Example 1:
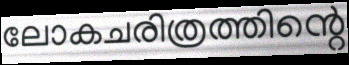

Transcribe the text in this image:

ലോകചരിത്രത്തിന്റെ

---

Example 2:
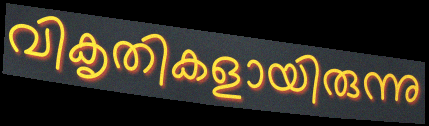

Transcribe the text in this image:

വികൃതികളായിരുന്നു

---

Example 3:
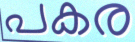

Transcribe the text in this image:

പകര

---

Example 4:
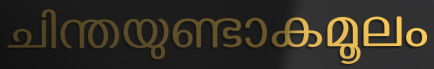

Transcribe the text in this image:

ചിന്തയുണ്ടാകമൂലം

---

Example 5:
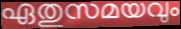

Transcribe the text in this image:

ഏതുസമയവും